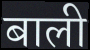
बाली